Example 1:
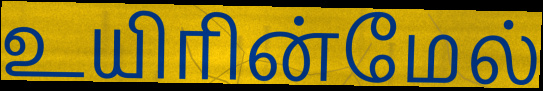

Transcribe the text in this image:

உயிரின்மேல்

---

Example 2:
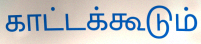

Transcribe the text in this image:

காட்டக்கூடும்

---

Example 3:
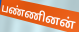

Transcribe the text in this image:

பண்ணினன்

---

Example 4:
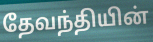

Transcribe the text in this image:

தேவந்தியின்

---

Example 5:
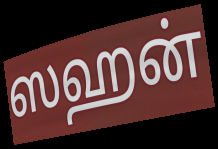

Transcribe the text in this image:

ஸஹன்